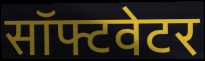
सॉफ्टवेटर